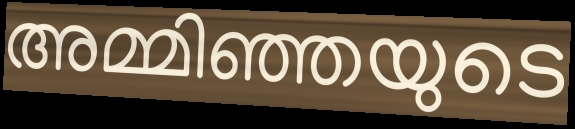
അമ്മിഞ്ഞയുടെ